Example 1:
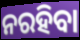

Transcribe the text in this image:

ନରହିବା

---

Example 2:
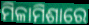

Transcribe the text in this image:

ମିଳାମିଶାରେ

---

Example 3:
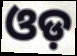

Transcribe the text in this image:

ଓଡ଼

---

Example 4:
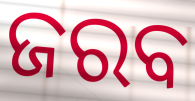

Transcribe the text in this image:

ଜରବ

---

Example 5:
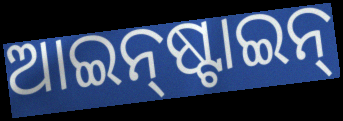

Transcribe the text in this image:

ଆଇନ୍‌ଷ୍ଟାଇନ୍